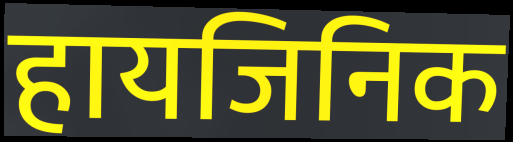
हायजिनिक